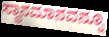
ಸ್ಥಾನಮಾನವನ್ನೂ